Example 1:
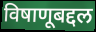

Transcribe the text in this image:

विषाणूबद्दल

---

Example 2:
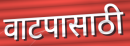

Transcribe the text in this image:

वाटपासाठी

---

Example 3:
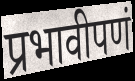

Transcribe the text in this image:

प्रभावीपणं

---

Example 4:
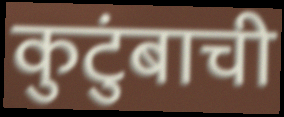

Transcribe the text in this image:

कुटुंबाची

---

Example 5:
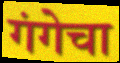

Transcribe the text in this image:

गंगेचा